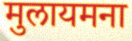
मुलायमना